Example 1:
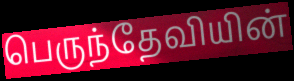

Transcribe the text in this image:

பெருந்தேவியின்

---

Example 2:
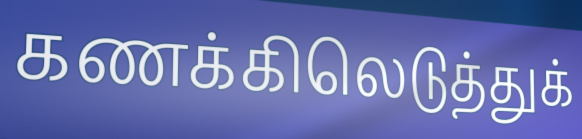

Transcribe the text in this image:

கணக்கிலெடுத்துக்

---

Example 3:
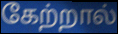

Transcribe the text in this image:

கேற்றால்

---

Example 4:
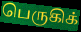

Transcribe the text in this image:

பெருகிக்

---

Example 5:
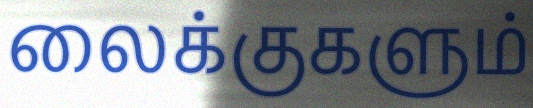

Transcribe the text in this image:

லைக்குகளும்